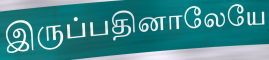
இருப்பதினாலேயே